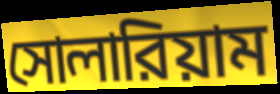
সোলারিয়াম